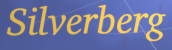
Silverberg